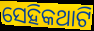
ସେହିକଥାଟି